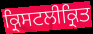
ਕ੍ਰਿਸਟਲੀਕ੍ਰਿਤ